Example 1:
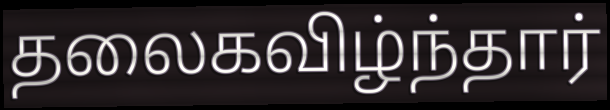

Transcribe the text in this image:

தலைகவிழ்ந்தார்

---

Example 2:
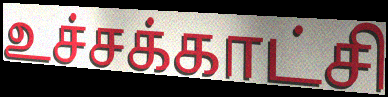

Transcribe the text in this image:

உச்சக்காட்சி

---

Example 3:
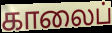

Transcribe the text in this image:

காலைப்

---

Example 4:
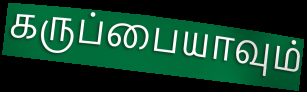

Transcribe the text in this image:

கருப்பையாவும்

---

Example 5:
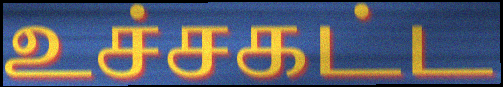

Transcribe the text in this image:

உச்சகட்ட